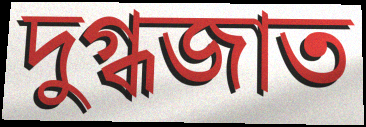
দুগ্ধজাত